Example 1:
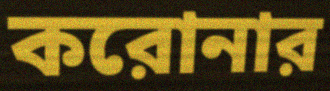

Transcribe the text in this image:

করোনার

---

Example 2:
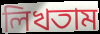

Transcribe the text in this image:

লিখতাম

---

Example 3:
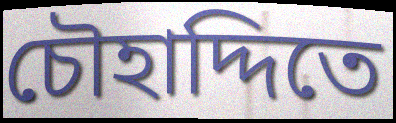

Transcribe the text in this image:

চৌহাদ্দিতে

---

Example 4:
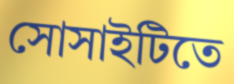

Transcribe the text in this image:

সোসাইটিতে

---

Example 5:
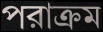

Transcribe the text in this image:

পরাক্রম